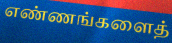
எண்ணங்களைத்